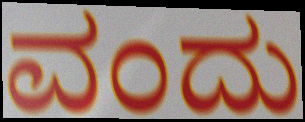
ವಂದು